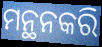
ମନ୍ଥନକରି